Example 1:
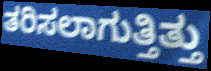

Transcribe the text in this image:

ತರಿಸಲಾಗುತ್ತಿತ್ತು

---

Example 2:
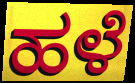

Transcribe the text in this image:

ಹಳೆ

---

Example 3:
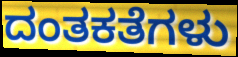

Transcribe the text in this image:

ದಂತಕತೆಗಳು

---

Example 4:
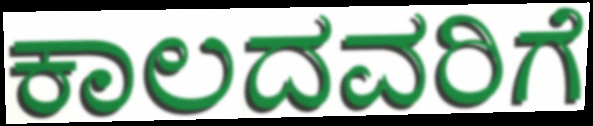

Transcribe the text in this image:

ಕಾಲದವರಿಗೆ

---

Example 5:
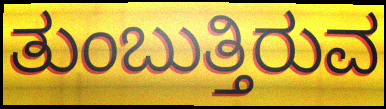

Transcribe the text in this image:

ತುಂಬುತ್ತಿರುವ